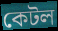
কেটল